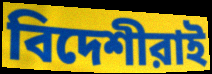
বিদেশীরাই